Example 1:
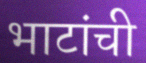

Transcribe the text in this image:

भाटांची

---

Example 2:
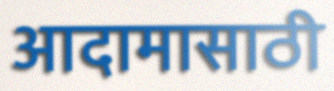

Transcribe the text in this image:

आदामासाठी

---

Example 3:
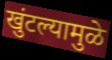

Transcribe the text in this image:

खुंटल्यामुळे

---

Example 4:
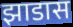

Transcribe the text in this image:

झाडास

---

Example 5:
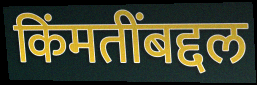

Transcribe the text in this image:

किंमतींबद्दल